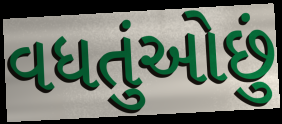
વધતુંઓછું